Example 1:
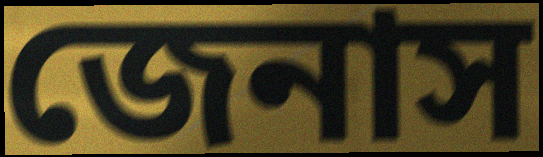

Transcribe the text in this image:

জেনাস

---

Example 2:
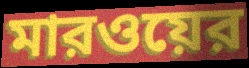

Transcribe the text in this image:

মারওয়ের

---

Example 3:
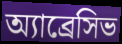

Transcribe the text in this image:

অ্যাব্রেসিভ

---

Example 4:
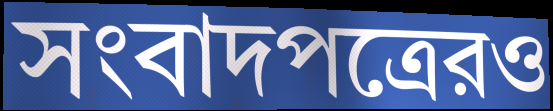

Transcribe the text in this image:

সংবাদপত্রেরও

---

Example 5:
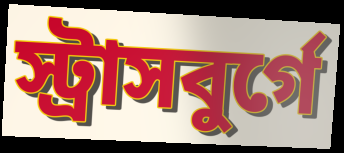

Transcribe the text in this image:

স্ট্রাসবুর্গে